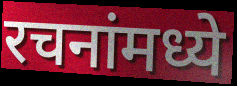
रचनांमध्ये